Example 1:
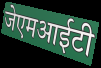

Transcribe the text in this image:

जेएमआईटी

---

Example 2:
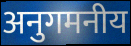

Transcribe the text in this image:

अनुगमनीय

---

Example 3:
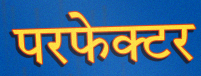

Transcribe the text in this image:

परफेक्टर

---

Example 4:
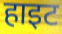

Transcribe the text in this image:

हाइट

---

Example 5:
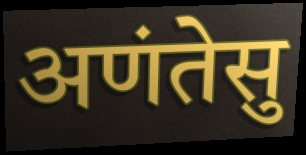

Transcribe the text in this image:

अणंतेसु